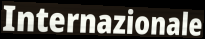
Internazionale